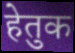
हेतुक